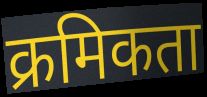
क्रमिकता